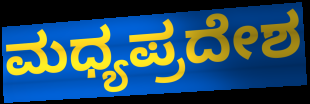
ಮಧ್ಯಪ್ರದೇಶ